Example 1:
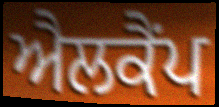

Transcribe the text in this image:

ਐਲਕੈਂਪ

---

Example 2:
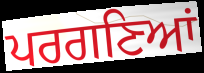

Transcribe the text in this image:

ਪਰਗਣਿਆਂ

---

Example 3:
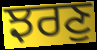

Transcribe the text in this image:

ਝਰਣੁ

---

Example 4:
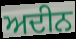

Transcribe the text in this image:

ਅਦੀਨ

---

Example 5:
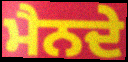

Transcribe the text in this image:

ਮੈਨਦੇ